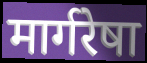
मार्गरेषा